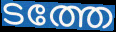
ടത്തേ